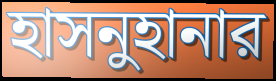
হাসনুহানার